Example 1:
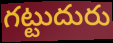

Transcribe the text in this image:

గట్టుదురు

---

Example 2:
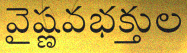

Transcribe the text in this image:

వైష్ణవభక్తుల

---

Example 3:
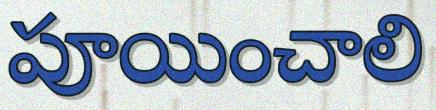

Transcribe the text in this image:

పూయించాలి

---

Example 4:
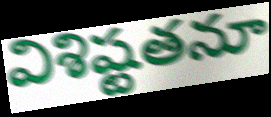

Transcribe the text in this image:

విశిష్టతనూ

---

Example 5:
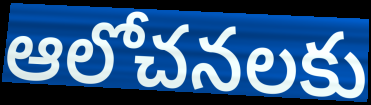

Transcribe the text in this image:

ఆలోచనలకు